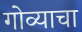
गोव्याचा